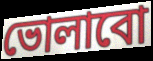
ভোলাবো